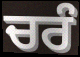
ਚਰੰ